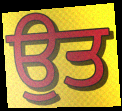
ਉਤ